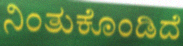
ನಿಂತುಕೊಂಡಿದೆ